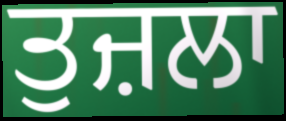
ਤੁਜ਼ਲਾ